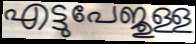
എട്ടുപേജുള്ള